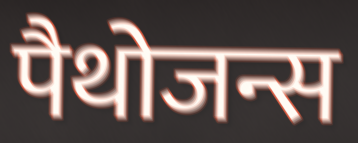
पैथोजन्स